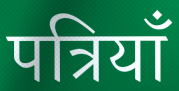
पत्रियाँ